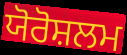
ਯੋਰੋਸ਼ਲਮ